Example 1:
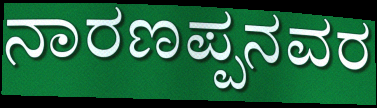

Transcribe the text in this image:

ನಾರಣಪ್ಪನವರ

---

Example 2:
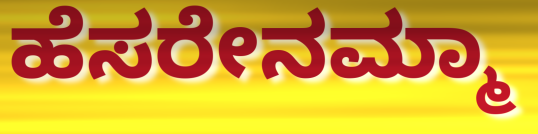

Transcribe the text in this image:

ಹೆಸರೇನಮ್ಮಾ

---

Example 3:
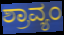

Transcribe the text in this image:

ಶ್ರಾವ್ಯಂ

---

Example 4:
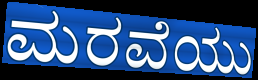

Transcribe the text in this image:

ಮರವೆಯು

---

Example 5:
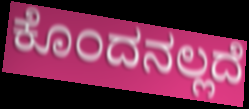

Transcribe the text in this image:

ಕೊಂದನಲ್ಲದೆ